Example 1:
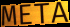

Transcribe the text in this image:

META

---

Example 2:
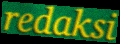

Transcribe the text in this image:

redaksi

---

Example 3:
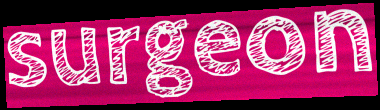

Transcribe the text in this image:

surgeon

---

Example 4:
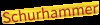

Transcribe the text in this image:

Schurhammer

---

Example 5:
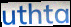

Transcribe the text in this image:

uthta